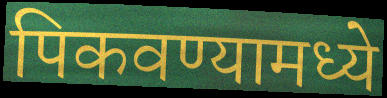
पिकवण्यामध्ये